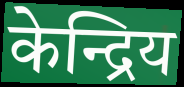
केन्द्रिय